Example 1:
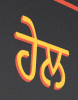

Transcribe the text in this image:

ਹੇਲ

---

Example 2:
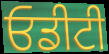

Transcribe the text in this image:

ਓਡੀਟੀ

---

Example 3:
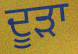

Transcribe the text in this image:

ਦੂੜਾ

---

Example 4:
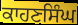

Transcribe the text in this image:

ਕਾਹਣਸਿੰਘ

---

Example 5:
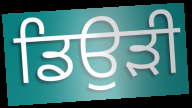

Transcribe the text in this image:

ਡਿਉੜੀ